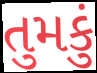
તુમકું